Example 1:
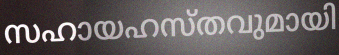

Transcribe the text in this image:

സഹായഹസ്തവുമായി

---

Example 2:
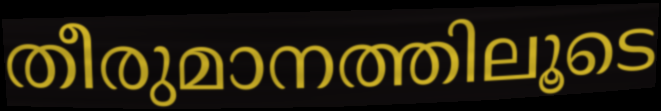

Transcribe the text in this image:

തീരുമാനത്തിലൂടെ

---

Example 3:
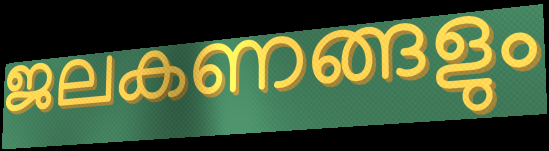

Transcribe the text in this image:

ജലകണങ്ങളും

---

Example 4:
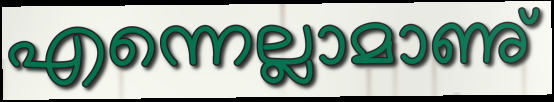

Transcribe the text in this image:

എന്നെല്ലാമാണു്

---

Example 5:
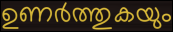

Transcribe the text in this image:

ഉണർത്തുകയും